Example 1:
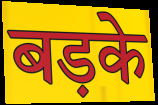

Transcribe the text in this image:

बड़के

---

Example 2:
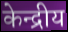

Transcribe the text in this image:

केन्द्रीय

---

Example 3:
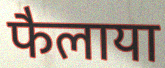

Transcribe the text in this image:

फैलाया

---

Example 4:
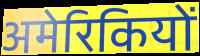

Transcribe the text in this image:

अमेरिकियों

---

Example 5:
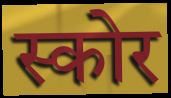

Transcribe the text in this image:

स्कोर